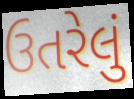
ઉતરેલું